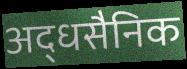
अद्धसैनिक